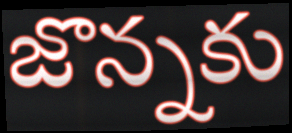
జొన్నకు